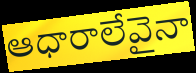
ఆధారాలేవైనా